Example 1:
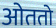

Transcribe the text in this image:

ओततो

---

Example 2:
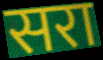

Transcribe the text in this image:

सरा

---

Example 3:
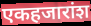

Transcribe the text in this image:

एकहजारांश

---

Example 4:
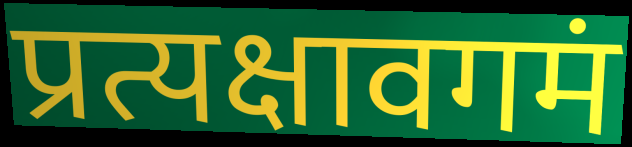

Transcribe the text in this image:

प्रत्यक्षावगमं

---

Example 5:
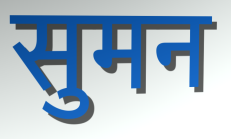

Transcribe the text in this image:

सुमन